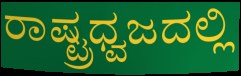
ರಾಷ್ಟ್ರಧ್ವಜದಲ್ಲಿ